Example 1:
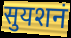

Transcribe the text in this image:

सुयशनं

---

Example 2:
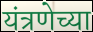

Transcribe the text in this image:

यंत्रणेच्या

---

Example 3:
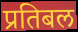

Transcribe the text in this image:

प्रतिबल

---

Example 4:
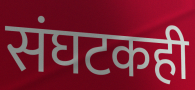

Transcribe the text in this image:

संघटकही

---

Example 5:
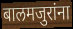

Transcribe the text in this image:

बालमजुरांना